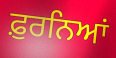
ਫ਼ੁਰਨਿਆਂ